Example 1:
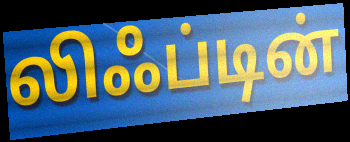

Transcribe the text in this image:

லிஃப்டின்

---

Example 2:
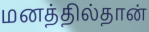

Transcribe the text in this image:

மனத்தில்தான்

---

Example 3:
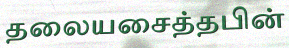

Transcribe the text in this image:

தலையசைத்தபின்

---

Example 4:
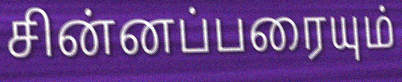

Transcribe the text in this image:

சின்னப்பரையும்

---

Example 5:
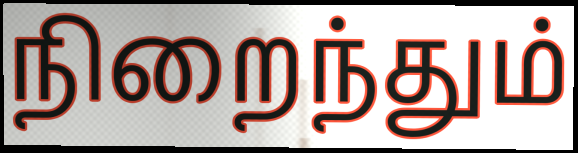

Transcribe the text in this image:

நிறைந்தும்